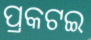
ପ୍ରକଟଇ